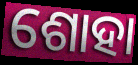
ଶୋହା